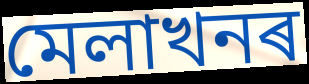
মেলাখনৰ